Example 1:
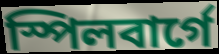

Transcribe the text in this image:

স্পিলবাৰ্গে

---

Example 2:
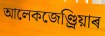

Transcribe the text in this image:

আলেকজেণ্ড্ৰিয়াৰ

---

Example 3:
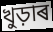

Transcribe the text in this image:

খুড়াৰ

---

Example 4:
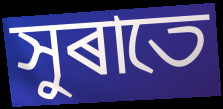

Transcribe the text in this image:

সুৰাতে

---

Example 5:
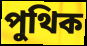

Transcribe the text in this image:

পুথিক